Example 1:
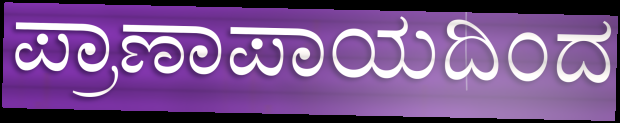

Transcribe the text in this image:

ಪ್ರಾಣಾಪಾಯದಿಂದ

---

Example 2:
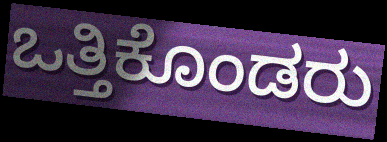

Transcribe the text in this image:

ಒತ್ತಿಕೊಂಡರು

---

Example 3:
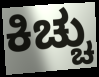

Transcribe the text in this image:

ಕಿಚ್ಚು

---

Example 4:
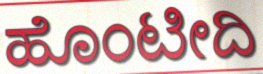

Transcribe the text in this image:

ಹೊಂಟೀದಿ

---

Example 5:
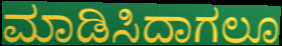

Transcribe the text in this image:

ಮಾಡಿಸಿದಾಗಲೂ